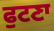
ਫੁਟਣਾ